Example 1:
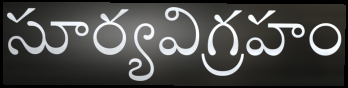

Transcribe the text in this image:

సూర్యవిగ్రహం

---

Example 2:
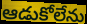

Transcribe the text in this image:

ఆడుకోలేను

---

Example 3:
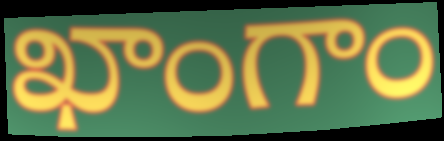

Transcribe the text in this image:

ఖాంగాం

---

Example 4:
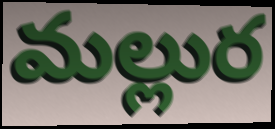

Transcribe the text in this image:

మల్లుర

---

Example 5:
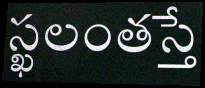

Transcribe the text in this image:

స్ఖలంతస్తే